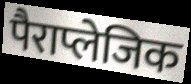
पैराप्लेजिक